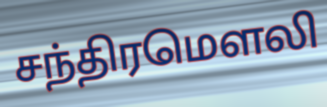
சந்திரமௌலி